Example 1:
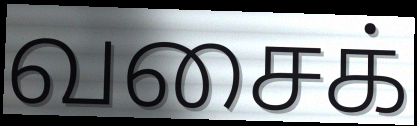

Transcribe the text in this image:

வசைக்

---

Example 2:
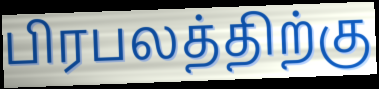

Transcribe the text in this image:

பிரபலத்திற்கு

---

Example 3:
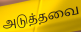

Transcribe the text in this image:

அடுத்தவை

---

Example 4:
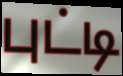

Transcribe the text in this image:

புட்டி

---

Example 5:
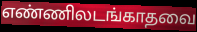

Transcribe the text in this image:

எண்ணிலடங்காதவை